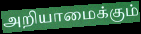
அறியாமைக்கும்